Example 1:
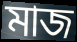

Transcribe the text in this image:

মাজ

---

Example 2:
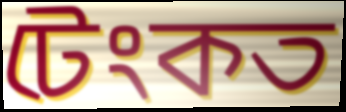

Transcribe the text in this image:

টেংকত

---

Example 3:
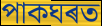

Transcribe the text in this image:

পাকঘৰত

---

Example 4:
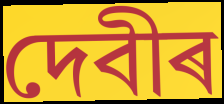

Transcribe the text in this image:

দেবীৰ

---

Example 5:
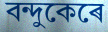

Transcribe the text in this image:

বন্দুকেৰে